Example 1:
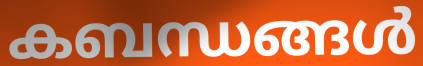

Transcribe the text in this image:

കബന്ധങ്ങൾ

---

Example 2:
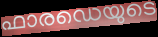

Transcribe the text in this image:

ഫാരഡെയുടെ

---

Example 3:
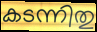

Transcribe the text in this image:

കടന്നിതു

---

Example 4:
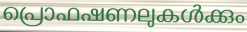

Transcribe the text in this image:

പ്രൊഫഷണലുകൾക്കും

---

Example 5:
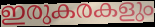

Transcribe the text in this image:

ഇരുകരകളും